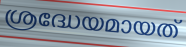
ശ്രദ്ധേയമായത്